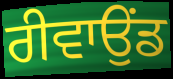
ਰੀਵਾਉਂਡ